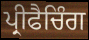
ਪ੍ਰੀਫੈਚਿੰਗ